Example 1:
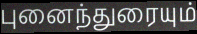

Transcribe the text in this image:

புனைந்துரையும்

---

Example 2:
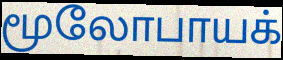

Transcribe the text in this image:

மூலோபாயக்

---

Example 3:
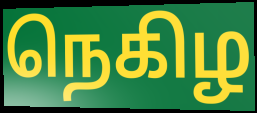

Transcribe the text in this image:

நெகிழ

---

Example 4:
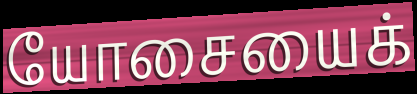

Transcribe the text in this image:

யோசையைக்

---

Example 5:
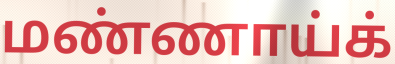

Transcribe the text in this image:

மண்ணாய்க்